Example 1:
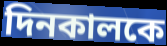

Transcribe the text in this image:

দিনকালকে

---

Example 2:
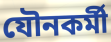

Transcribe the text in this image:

যৌনকর্মী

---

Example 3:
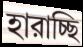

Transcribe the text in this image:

হারাচ্ছি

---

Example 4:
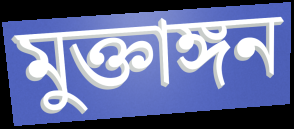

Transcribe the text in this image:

মুক্তাঙ্গন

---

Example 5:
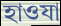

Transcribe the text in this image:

হাওযা